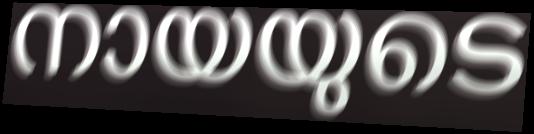
നായയുടെ